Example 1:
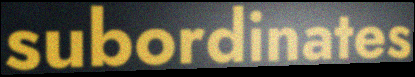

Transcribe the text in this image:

subordinates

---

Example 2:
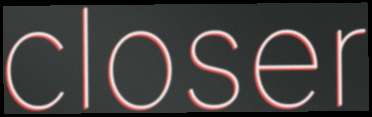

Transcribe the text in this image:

closer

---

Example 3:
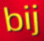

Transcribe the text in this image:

bij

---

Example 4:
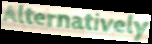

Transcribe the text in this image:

Alternatively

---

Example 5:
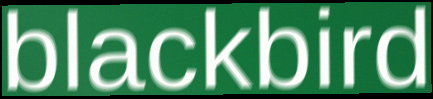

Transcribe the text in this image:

blackbird